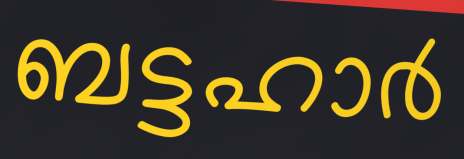
ബട്ടഹാർ